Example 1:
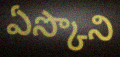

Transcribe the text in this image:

ఏస్కొని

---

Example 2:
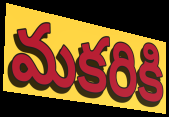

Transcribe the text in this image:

మకరికి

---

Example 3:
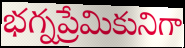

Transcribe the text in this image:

భగ్నప్రేమికునిగా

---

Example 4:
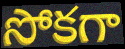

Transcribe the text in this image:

సోకగా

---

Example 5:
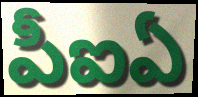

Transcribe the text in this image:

పీఐఏ